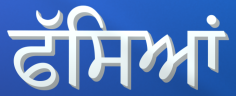
ਫੱਸਿਆਂ